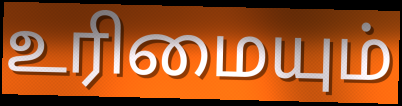
உரிமையும்